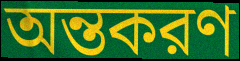
অন্তকরণ